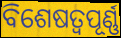
ବିଶେଷତ୍ୱପୂର୍ଣ୍ଣ